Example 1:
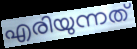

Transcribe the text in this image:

എരിയുന്നത്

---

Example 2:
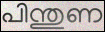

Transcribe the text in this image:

പിന്തുണ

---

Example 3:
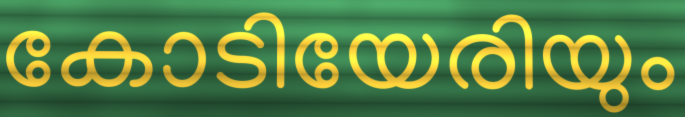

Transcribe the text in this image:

കോടിയേരിയും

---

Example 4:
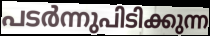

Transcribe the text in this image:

പടർന്നുപിടിക്കുന്ന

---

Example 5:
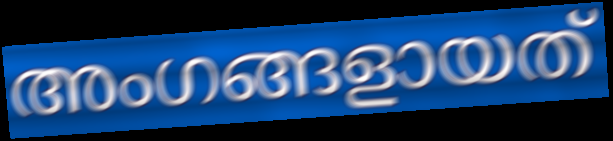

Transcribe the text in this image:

അംഗങ്ങളായത്